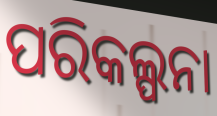
ପରିକଲ୍ପନା